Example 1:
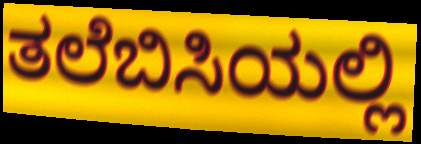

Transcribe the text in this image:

ತಲೆಬಿಸಿಯಲ್ಲಿ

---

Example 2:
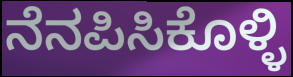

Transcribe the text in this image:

ನೆನಪಿಸಿಕೊಳ್ಳಿ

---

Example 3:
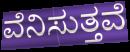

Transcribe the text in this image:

ವೆನಿಸುತ್ತವೆ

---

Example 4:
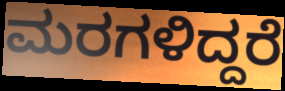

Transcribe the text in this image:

ಮರಗಳಿದ್ದರೆ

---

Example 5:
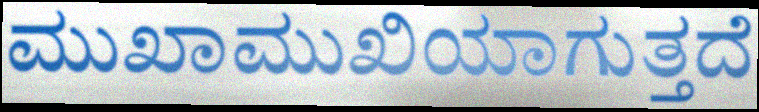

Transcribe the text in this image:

ಮುಖಾಮುಖಿಯಾಗುತ್ತದೆ